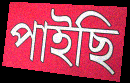
পাইছি